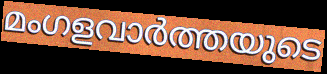
മംഗളവാർത്തയുടെ